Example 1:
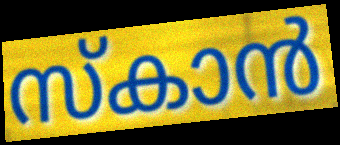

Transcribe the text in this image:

സ്കാൻ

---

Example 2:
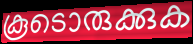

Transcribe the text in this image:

കൂടൊരുക്കുക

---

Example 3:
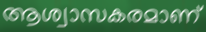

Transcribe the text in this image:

ആശ്വാസകരമാണ്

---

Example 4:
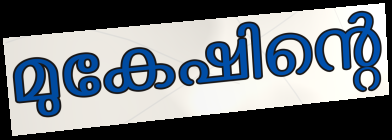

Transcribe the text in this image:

മുകേഷിന്റെ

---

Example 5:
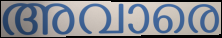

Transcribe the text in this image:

അവാരെ